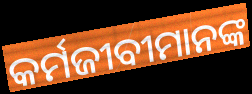
କର୍ମଜୀବୀମାନଙ୍କ